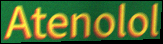
Atenolol